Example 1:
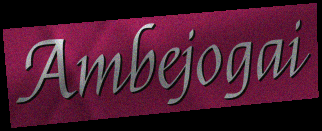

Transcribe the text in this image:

Ambejogai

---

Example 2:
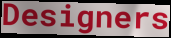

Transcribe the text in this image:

Designers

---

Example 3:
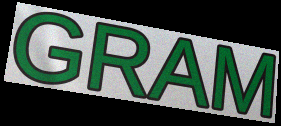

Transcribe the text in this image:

GRAM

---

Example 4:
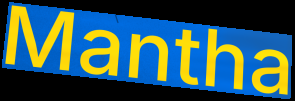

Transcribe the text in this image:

Mantha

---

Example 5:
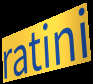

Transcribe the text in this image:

ratini